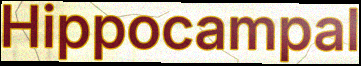
Hippocampal